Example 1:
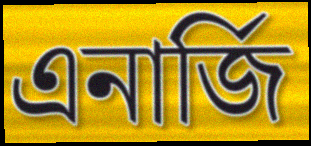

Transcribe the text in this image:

এনার্জি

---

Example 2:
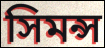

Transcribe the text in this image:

সিমন্স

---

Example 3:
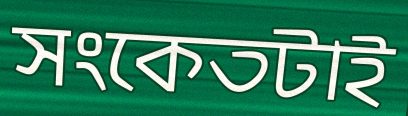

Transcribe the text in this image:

সংকেতটাই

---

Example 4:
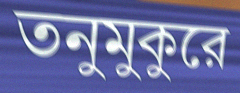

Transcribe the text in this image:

তনুমুকুরে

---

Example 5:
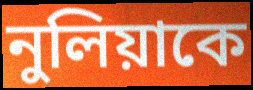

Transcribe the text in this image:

নুলিয়াকে